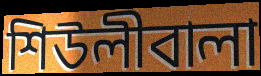
শিউলীবালা